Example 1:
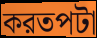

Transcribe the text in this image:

করতপটা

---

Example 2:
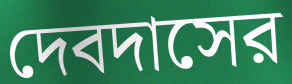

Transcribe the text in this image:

দেবদাসের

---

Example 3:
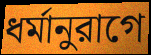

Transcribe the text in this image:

ধর্মানুরাগে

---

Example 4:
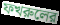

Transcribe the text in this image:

ফখরুলের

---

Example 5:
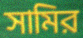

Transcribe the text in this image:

সামির